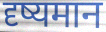
दृष्यमान